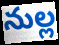
నుల్ల